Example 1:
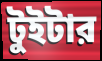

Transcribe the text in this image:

টুইটার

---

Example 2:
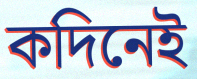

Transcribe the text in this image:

কদিনেই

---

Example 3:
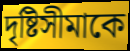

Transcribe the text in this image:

দৃষ্টিসীমাকে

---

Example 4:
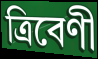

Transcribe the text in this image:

ত্রিবেণী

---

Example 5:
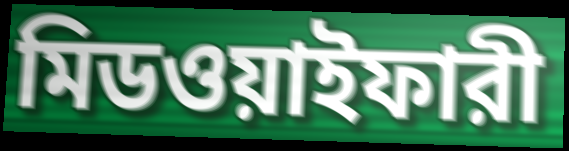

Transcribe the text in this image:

মিডওয়াইফারী